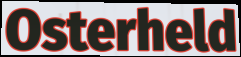
Osterheld